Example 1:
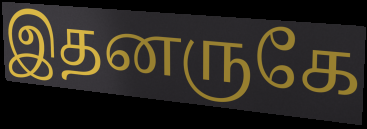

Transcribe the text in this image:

இதனருகே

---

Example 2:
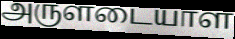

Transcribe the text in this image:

அருளடையாள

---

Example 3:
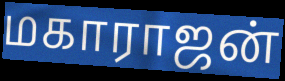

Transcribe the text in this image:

மகாராஜன்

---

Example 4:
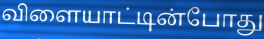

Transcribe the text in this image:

விளையாட்டின்போது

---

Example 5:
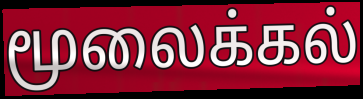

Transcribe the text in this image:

மூலைக்கல்